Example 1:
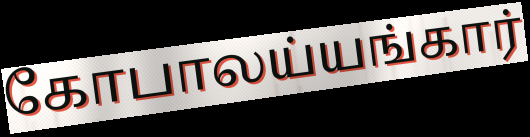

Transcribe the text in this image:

கோபாலய்யங்கார்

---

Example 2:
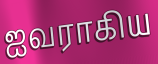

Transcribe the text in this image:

ஐவராகிய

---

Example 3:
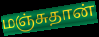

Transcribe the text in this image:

மஞ்சுதான்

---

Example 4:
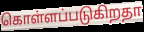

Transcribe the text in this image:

கொள்ளப்படுகிறதா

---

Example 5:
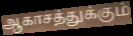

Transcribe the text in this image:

ஆகாசத்துக்கும்